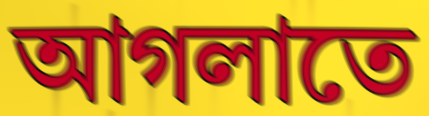
আগলাতে